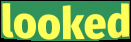
looked